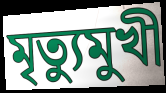
মৃত্যুমুখী